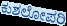
ಕುಶಲೋಪರಿ